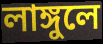
লাঙ্গুলে